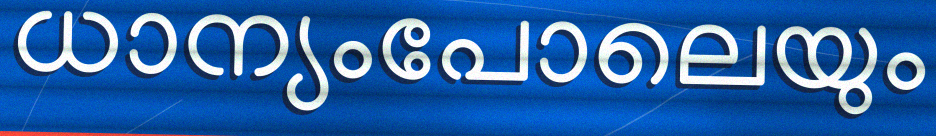
ധാന്യംപോലെയും